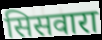
सिसवारा